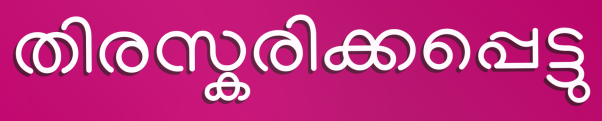
തിരസ്കരിക്കപ്പെട്ടു